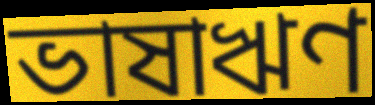
ভাষাঋণ